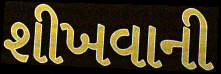
શીખવાની